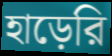
হাড়েরি